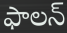
ఫాలన్